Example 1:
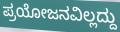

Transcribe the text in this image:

ಪ್ರಯೋಜನವಿಲ್ಲದ್ದು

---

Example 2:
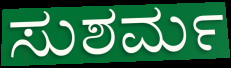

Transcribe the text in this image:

ಸುಶರ್ಮ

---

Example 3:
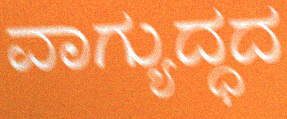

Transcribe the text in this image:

ವಾಗ್ಯುದ್ಧದ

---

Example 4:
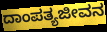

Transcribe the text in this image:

ದಾಂಪತ್ಯಜೀವನ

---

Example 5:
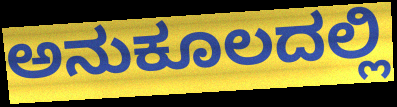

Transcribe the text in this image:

ಅನುಕೂಲದಲ್ಲಿ